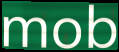
mob